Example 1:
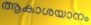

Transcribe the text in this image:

ആകാശയാനം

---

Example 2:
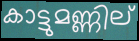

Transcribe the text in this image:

കാട്ടുമണ്ണില്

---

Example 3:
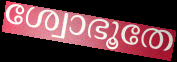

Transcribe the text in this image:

ശ്വോഭൂതേ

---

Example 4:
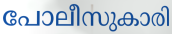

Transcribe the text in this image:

പോലീസുകാരി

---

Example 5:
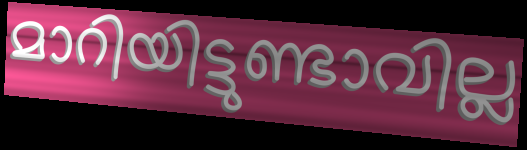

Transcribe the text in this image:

മാറിയിട്ടുണ്ടാവില്ല